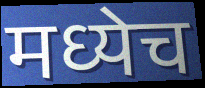
मध्‍येच